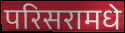
परिसरामधे